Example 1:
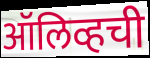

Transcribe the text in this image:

ऑलिव्हची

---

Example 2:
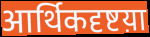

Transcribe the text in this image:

आर्थिकदृष्टय़ा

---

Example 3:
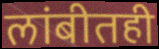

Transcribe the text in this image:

लांबीतही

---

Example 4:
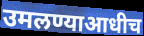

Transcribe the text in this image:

उमलण्याआधीच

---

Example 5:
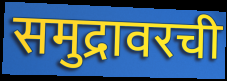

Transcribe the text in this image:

समुद्रावरची